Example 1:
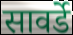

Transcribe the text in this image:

सावर्डे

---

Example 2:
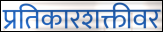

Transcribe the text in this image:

प्रतिकारशक्तीवर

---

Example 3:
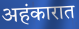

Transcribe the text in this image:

अहंकारात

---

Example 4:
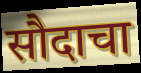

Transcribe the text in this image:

सौदाचा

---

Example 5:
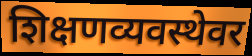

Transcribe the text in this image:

शिक्षणव्यवस्थेवर